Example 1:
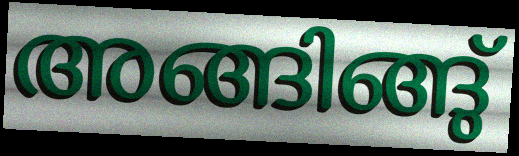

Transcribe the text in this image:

അങ്ങിങ്ങു്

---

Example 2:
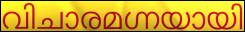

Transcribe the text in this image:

വിചാരമഗ്നയായി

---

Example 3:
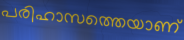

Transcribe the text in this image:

പരിഹാസത്തെയാണ്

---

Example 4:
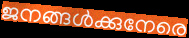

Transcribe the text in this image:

ജനങ്ങൾക്കുനേരെ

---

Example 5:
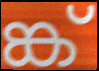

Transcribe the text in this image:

ങ്ക്